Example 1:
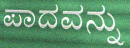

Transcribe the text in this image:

ಪಾದವನ್ನು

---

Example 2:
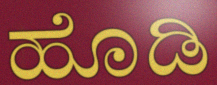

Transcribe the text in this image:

ಹೊಡಿ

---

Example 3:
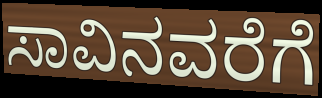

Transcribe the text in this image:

ಸಾವಿನವರೆಗೆ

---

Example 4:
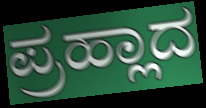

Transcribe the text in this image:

ಪ್ರಹ್ಲಾದ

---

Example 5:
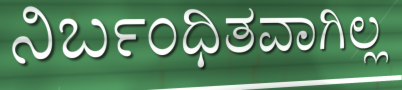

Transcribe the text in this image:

ನಿರ್ಬಂಧಿತವಾಗಿಲ್ಲ